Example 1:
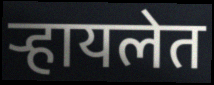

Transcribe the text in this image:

ऱ्हायलेत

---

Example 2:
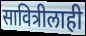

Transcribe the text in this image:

सावित्रीलाही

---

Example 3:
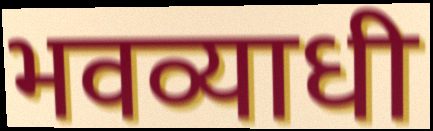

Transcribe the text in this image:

भवव्याधी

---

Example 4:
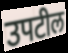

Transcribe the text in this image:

उपटील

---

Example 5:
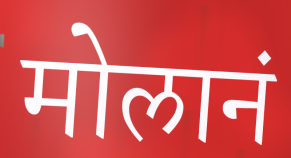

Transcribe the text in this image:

मोलानं